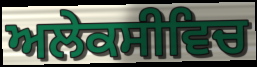
ਅਲੇਕਸੀਵਿਚ